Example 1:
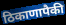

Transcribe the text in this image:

ठिकाणापैकी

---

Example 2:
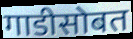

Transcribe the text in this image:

गाडीसोबत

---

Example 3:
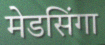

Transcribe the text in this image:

मेडसिंगा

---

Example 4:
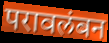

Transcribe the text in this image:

परावलंबन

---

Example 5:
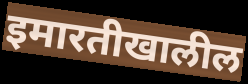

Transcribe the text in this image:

इमारतीखालील